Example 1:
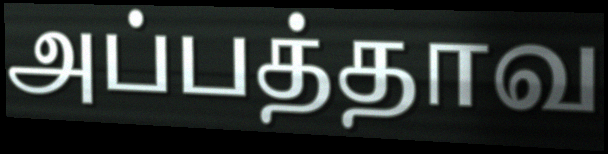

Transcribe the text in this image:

அப்பத்தாவ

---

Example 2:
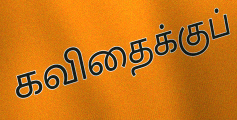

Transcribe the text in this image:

கவிதைக்குப்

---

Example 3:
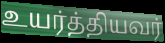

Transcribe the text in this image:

உயர்த்தியவர்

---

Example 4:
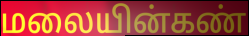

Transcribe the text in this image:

மலையின்கண்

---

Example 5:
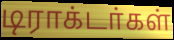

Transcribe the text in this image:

டிராக்டர்கள்